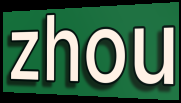
zhou